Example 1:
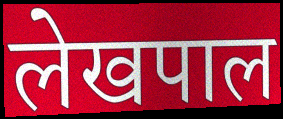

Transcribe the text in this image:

लेखपाल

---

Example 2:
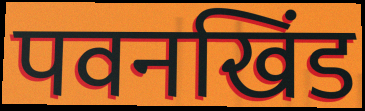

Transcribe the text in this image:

पवनखिंड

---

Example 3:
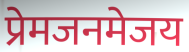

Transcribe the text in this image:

प्रेमजनमेजय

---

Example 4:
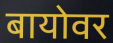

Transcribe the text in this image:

बायोवर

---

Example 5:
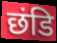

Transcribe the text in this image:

छंडि